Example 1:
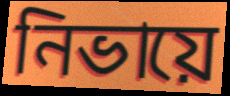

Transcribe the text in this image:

নিভায়ে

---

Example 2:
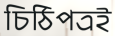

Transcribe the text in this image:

চিঠিপত্রই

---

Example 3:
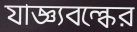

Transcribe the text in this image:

যাজ্ঞ্যবল্কের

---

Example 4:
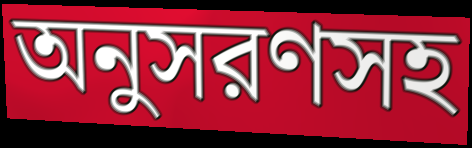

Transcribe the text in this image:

অনুসরণসহ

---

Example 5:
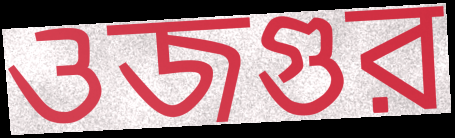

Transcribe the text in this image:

ওজগুর